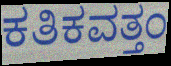
ಕತಿಕವತ್ತಂ